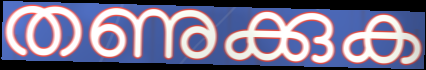
തണുക്കുക